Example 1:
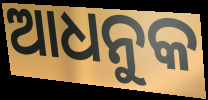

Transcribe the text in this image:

ଆଧନୁକ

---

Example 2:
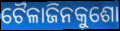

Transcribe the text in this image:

ଚୈଳାଜିନକୁଶୋ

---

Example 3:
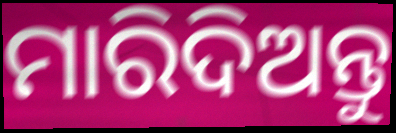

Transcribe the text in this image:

ମାରିଦିଅନ୍ତୁ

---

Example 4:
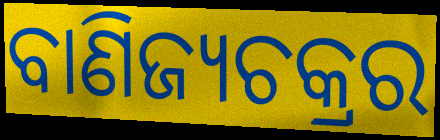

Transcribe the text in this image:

ବାଣିଜ୍ୟଚକ୍ରର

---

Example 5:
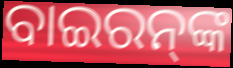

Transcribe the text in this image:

ବାଇରନ୍‌ଙ୍କ